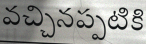
వచ్చినప్పటికి